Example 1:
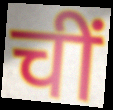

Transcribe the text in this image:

चीं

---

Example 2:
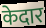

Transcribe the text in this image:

केदार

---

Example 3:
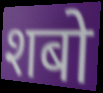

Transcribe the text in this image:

शबो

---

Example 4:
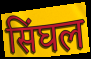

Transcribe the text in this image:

सिंघल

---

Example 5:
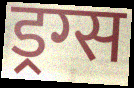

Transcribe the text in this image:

ड्रग्‍स